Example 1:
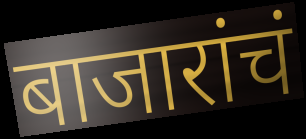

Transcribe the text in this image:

बाजारांचं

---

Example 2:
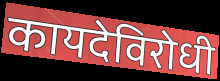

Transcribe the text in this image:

कायदेविरोधी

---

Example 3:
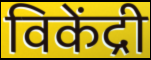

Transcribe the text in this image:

विकेंद्री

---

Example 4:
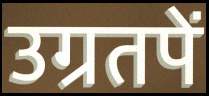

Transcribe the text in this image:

उग्रतपें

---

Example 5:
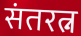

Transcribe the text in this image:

संतरत्न